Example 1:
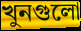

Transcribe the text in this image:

খুনগুলো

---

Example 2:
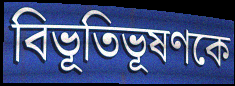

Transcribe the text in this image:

বিভূতিভূষণকে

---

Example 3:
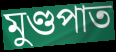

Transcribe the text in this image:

মুণ্ডপাত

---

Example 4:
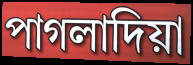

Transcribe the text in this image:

পাগলাদিয়া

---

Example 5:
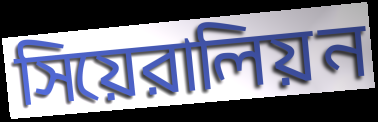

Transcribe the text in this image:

সিয়েরালিয়ন